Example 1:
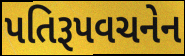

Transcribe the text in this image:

પતિરૂપવચનેન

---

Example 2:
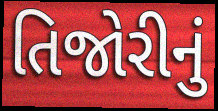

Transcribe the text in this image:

તિજોરીનું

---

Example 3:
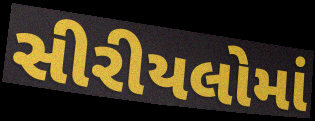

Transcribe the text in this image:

સીરીયલોમાં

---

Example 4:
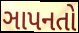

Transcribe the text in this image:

ઞાપનતો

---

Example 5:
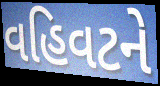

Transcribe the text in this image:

વહિવટને